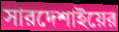
সারদেশাইয়ের